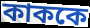
কাককে